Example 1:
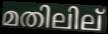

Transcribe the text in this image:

മതിലില്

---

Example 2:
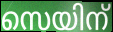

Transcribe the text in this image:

സെയിന്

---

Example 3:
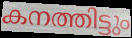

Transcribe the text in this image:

കനത്തിട്ടും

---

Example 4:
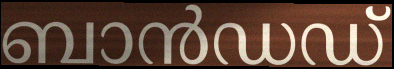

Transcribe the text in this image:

ബാൻഡഡ്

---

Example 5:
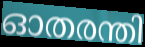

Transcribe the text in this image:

ഓതരന്തി